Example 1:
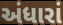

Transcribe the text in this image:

અંધારાં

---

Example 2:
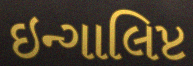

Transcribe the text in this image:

ઇન્ગાલિપ્ટ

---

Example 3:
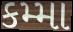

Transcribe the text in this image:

કમ્મા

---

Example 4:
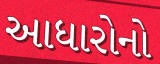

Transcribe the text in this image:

આધારોનો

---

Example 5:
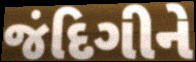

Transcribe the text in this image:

જંદિગીને